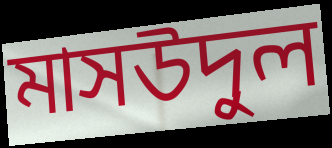
মাসউদুল